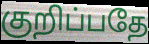
குறிப்பதே